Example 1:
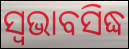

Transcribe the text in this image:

ସ୍ଵଭାବସିଦ୍ଧ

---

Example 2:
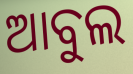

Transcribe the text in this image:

ଆବୁଲ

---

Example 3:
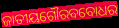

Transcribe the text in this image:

ଜାତୀୟଗୌରବବୋଧର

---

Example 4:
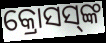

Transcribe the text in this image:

କ୍ରୋସସ୍‌ଙ୍କ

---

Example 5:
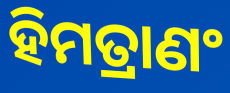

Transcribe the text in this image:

ହିମତ୍ରାଣଂ